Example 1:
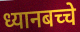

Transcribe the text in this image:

ध्यानबच्चे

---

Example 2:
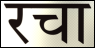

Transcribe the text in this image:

रचा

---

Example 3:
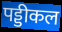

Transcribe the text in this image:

पड्डीकल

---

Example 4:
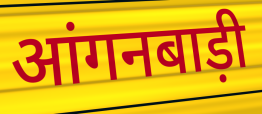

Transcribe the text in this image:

आंगनबाड़ी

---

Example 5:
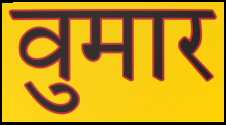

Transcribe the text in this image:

वुमार